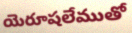
యెరూషలేముతో